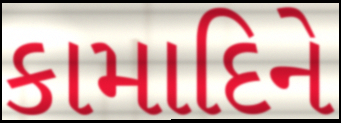
કામાદિને